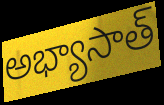
అభ్యాసాత్